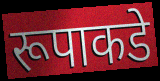
रूपाकडे